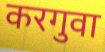
करगुवा